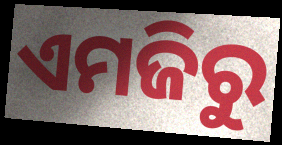
ଏମଜିରୁ